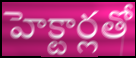
హెక్టార్లతో